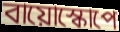
বায়োস্কোপে